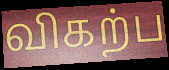
விகற்ப